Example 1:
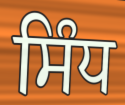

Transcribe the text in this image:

ਸਿੰਧ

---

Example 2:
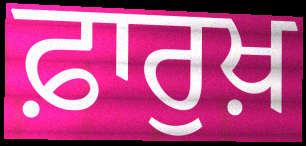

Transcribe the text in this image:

ਫ਼ਾਰੁਖ਼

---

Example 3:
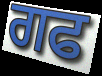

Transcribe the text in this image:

ਗਫ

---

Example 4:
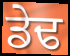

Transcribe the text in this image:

ਡੇਢ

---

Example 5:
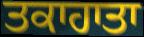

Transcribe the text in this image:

ਤਕਾਹਾਤਾ